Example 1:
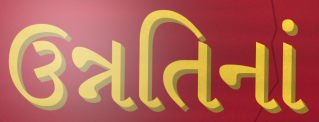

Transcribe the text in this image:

ઉન્નતિનાં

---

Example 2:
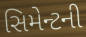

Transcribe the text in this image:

સિમેન્ટની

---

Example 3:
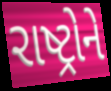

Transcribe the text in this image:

રાષ્ટ્રોને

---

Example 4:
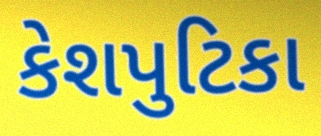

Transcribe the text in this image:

કેશપુટિકા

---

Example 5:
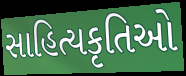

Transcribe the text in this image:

સાહિત્યકૃતિઓ